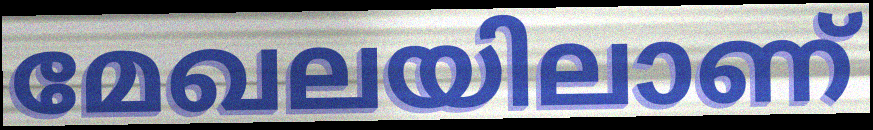
മേഖലയിലാണ്